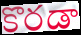
కొరడా